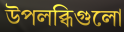
উপলব্ধিগুলো